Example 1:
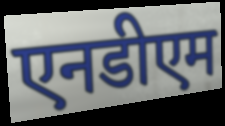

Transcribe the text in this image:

एनडीएम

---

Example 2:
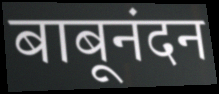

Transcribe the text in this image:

बाबूनंदन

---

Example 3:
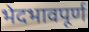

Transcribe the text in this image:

भेदभावपूर्ण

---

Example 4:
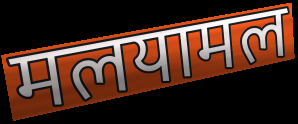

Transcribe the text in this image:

मलयामल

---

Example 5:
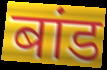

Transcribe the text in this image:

बांड